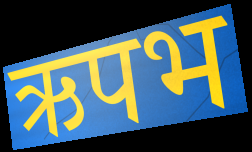
ऋपभ